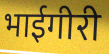
भाईगीरी